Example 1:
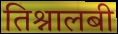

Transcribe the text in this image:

तिश्नालबी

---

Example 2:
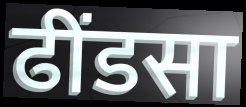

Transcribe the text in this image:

ढींडसा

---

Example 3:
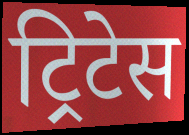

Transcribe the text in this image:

ट्रिटेस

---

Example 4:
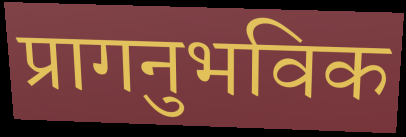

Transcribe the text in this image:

प्रागनुभविक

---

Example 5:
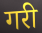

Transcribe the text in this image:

गरी